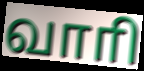
வாரி